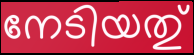
നേടിയതു്